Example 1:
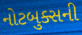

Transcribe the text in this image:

નોટબુક્સની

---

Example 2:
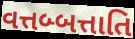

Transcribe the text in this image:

વત્તબ્બત્તાતિ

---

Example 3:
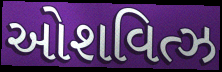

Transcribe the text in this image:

ઓશવિત્ઝ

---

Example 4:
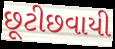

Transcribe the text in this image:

છૂટીછવાયી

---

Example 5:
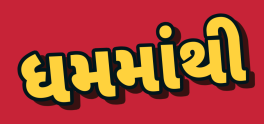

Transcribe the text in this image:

ધમમાંથી